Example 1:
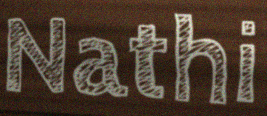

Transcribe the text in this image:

Nathi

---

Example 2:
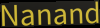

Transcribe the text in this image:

Nanand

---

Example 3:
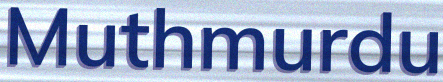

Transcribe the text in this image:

Muthmurdu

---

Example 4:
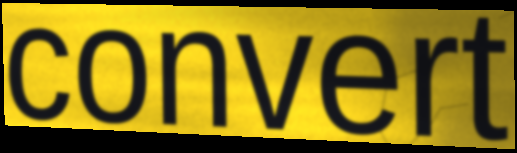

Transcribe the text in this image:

convert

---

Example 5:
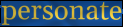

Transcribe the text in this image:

personate